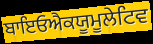
ਬਾਇਓਐਕਯੂਮੂਲੇਟਿਵ